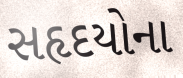
સહૃદયોના